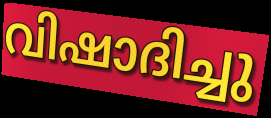
വിഷാദിച്ചു